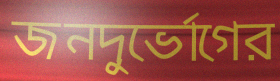
জনদুর্ভোগের